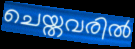
ചെയ്തവരിൽ